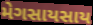
મેગસાયસાય